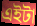
এইটা